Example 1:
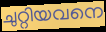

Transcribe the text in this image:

ചുറ്റിയവനെ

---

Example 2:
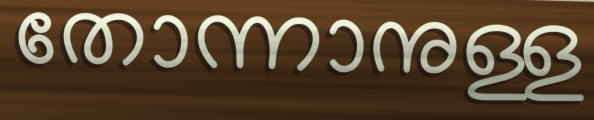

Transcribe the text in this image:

തോന്നാനുള്ള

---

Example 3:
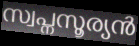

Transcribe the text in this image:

സ്വപ്നസൂര്യൻ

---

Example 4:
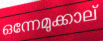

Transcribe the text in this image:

ഒന്നേമുക്കാല്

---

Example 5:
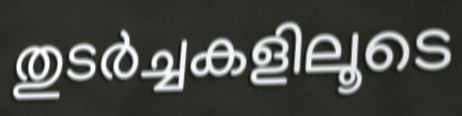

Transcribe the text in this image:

തുടർച്ചകളിലൂടെ